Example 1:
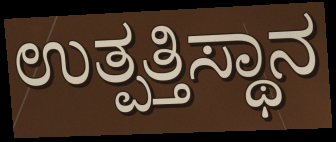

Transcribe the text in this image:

ಉತ್ಪತ್ತಿಸ್ಥಾನ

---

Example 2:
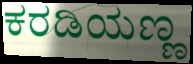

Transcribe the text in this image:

ಕರಡಿಯಣ್ಣ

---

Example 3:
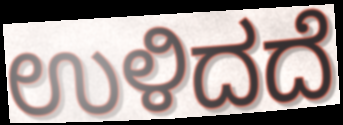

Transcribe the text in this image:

ಉಳಿದದೆ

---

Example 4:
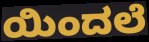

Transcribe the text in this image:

ಯಿಂದಲೆ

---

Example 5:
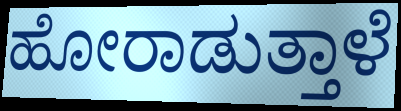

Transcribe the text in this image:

ಹೋರಾಡುತ್ತಾಳೆ